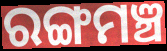
ରଙ୍ଗମଞ୍ଚ